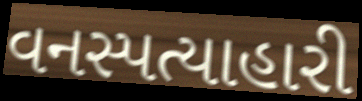
વનસ્પત્યાહારી